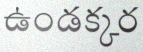
ఉండక్కర